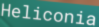
Heliconia